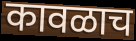
कावळाच